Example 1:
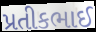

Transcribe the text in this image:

પ્રતીકભાઈ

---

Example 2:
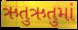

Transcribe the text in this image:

ઋતુઋતુમાં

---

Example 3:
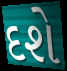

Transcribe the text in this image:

દશે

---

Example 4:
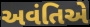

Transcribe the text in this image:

અવંતિએ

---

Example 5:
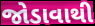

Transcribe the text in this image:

જોડાવાથી